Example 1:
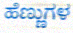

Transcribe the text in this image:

ಹೆಣ್ಣುಗಳ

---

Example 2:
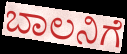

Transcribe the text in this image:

ಬಾಲನಿಗೆ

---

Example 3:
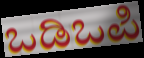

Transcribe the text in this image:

ಒಡಿಒಪಿ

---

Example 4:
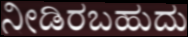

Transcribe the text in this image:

ನೀಡಿರಬಹುದು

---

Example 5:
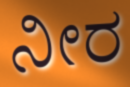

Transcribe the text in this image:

ನೀರ